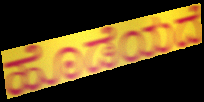
ಹೊಡೆಯದೆ